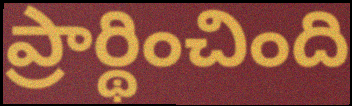
ప్రార్థించింది